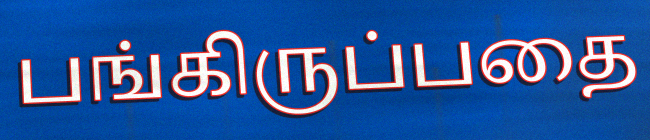
பங்கிருப்பதை